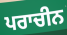
ਪਰਾਚੀਨ